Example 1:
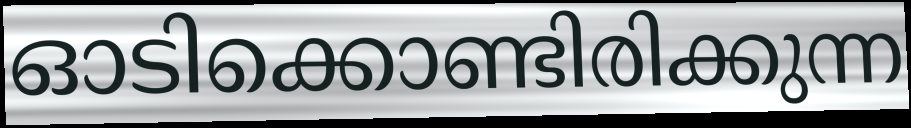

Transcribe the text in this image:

ഓടിക്കൊണ്ടിരിക്കുന്ന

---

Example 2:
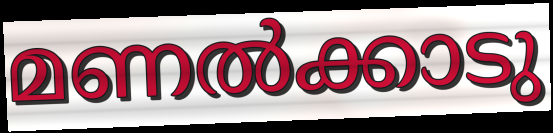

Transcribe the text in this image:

മണൽക്കാടു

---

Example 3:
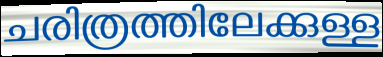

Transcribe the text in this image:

ചരിത്രത്തിലേക്കുള്ള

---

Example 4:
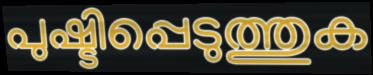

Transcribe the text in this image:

പുഷ്ടിപ്പെടുത്തുക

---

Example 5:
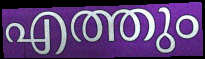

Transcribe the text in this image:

എത്തും